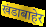
खंडाबाहेर